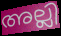
അല്ലി